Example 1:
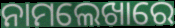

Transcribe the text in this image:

ନାମଲେଖାରେ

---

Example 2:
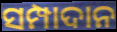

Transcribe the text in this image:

ସମ୍ପାଦାନ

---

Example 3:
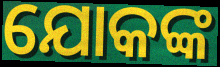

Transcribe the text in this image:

ଯୋକଙ୍କ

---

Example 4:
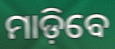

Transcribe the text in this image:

ମାଡ଼ିବେ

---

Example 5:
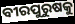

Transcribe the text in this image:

ବୀରପୁରୁଷକୁ